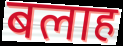
बलाह